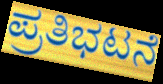
ಪ್ರತಿಭಟನೆ